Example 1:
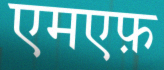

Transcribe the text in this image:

एमएफ़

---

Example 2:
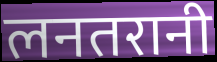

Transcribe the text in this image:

लनतरानी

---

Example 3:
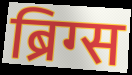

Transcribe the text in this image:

ब्रिग्स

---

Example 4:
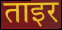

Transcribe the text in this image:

ताइर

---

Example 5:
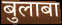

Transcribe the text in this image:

बुलाबा